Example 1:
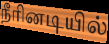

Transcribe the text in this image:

நீரினடியில்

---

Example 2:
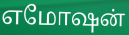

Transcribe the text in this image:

எமோஷன்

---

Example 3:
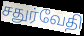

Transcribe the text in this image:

சதுர்வேதி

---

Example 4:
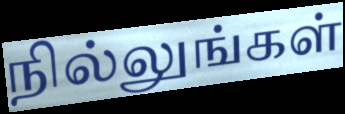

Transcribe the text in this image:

நில்லுங்கள்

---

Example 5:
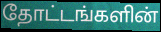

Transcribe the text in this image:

தோட்டங்களின்